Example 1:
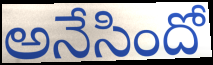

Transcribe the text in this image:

అనేసిందో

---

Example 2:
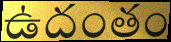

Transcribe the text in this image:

ఉదంతం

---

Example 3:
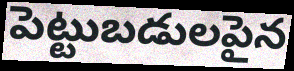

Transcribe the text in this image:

పెట్టుబడులపైన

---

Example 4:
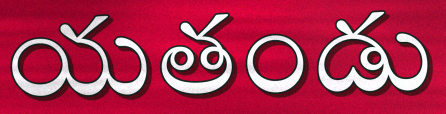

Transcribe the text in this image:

యతండు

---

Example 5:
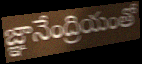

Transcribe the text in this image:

జ్ఞానేంద్రియంతో